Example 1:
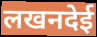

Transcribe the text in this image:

लखनदेई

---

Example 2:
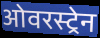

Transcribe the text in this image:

ओवरस्ट्रेन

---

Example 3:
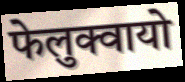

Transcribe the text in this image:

फेलुक्वायो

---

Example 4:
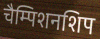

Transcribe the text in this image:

चैम्पिशनशिप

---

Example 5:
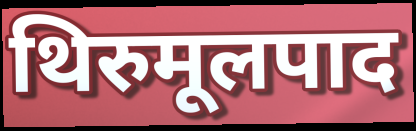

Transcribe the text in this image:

थिरुमूलपाद